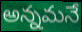
అన్నమనే